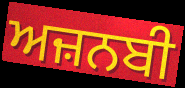
ਅਜ਼ਨਬੀ